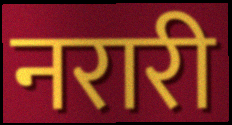
नरारी